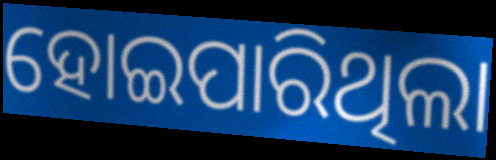
ହୋଇପାରିଥିଲା